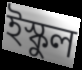
ইস্কুল